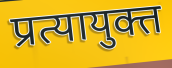
प्रत्यायुक्त